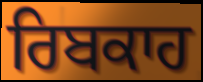
ਰਿਬਕਾਹ